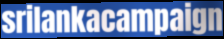
srilankacampaign